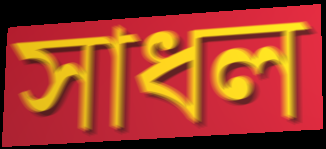
সাধল